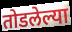
तोडलेल्या